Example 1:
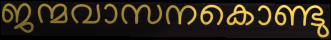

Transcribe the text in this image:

ജന്മവാസനകൊണ്ടു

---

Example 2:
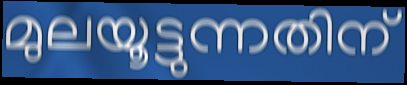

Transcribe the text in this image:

മുലയൂട്ടുന്നതിന്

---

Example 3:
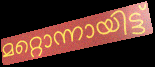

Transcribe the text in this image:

മറ്റൊന്നായിട്ട്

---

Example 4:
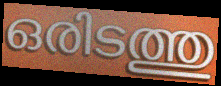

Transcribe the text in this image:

ഒരിടത്തു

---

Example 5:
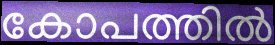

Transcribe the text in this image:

കോപത്തിൽ